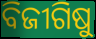
ବିଜୀଗିଷୁ